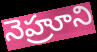
నెహ్రూని